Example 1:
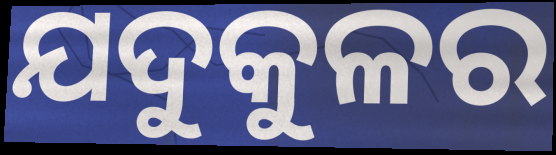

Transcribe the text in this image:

ଯଦୁକୁଳର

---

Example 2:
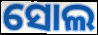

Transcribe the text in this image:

ସୋଲ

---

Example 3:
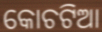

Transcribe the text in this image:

କୋଚଟିଆ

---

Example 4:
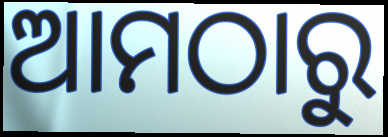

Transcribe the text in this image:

ଆମଠାରୁ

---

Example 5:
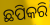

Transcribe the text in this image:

ଛପିକରି